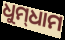
ଧୁମ୍‌ଧାମ